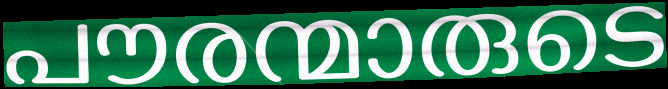
പൗരന്മാരുടെ